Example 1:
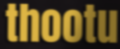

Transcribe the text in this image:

thootu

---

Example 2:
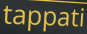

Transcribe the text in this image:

tappati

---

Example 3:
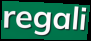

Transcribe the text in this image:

regali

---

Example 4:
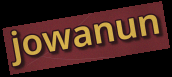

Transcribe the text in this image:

jowanun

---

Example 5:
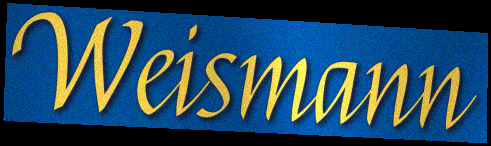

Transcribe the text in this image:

Weismann